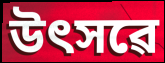
উৎসৱে